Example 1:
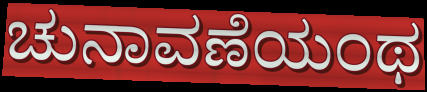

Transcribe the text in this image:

ಚುನಾವಣೆಯಂಥ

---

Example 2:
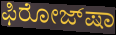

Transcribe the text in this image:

ಫಿರೋಜ್‌ಷಾ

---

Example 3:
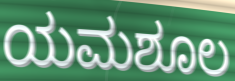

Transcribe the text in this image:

ಯಮಶೂಲ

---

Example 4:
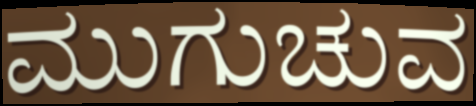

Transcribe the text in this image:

ಮುಗುಚುವ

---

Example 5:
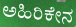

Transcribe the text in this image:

ಅಹಿರಿಕೇನ